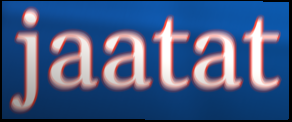
jaatat